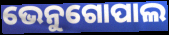
ଭେନୁଗୋପାଲ